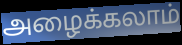
அழைக்கலாம்